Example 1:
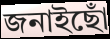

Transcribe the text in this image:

জনাইছোঁ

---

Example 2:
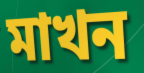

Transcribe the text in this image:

মাখন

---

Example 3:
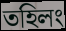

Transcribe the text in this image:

তহিলং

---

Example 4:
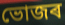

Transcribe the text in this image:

ভোজৰ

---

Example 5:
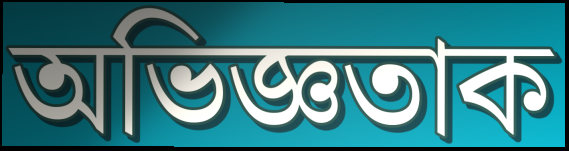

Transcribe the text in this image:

অভিজ্ঞতাক